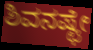
ಶಿವನಷ್ಟೇ